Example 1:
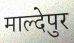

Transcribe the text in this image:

माल्देपुर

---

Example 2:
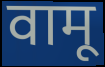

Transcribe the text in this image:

वामू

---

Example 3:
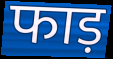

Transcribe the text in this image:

फाड़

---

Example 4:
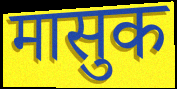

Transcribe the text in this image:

मासुक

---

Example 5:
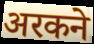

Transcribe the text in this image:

अरकने